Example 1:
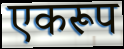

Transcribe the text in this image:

एकरूप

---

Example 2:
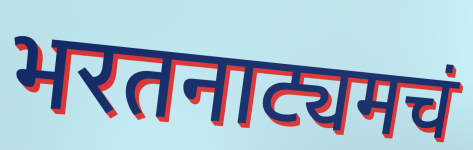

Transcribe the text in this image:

भरतनाट्यमचं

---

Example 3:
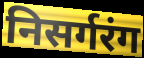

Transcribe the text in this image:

निसर्गरंग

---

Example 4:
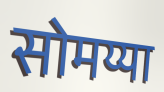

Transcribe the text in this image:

सोमय्या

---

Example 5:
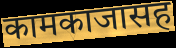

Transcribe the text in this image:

कामकाजासह